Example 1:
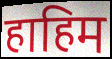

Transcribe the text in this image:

हाहिम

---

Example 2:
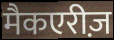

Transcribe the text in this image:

मैकएरीज़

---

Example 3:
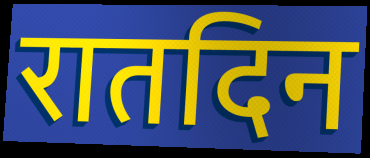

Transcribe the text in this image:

रातदिन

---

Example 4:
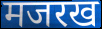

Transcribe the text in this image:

मजरख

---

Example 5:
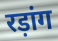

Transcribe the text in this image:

रड़ांग